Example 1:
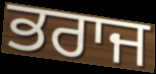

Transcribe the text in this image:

ਭਰਾਜ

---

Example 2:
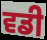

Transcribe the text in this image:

ਵਡੀ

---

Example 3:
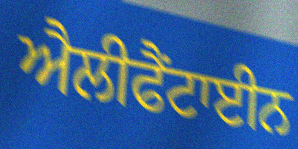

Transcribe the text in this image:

ਐਲੀਫੈਂਟਾਈਨ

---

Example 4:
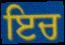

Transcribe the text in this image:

ਇਚ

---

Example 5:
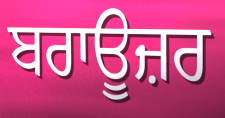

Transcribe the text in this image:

ਬਰਾਊਜ਼ਰ